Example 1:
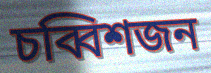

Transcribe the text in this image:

চব্বিশজন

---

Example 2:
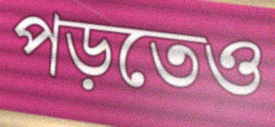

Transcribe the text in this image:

পড়তেও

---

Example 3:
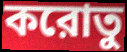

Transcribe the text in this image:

করোতু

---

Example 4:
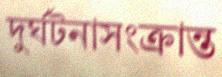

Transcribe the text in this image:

দুর্ঘটনাসংক্রান্ত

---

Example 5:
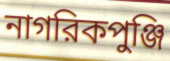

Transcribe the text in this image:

নাগরিকপুঞ্জি